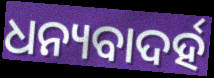
ଧନ୍ୟବାଦର୍ହ